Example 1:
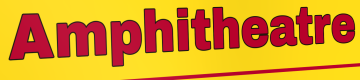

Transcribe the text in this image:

Amphitheatre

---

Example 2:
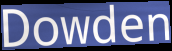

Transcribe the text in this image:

Dowden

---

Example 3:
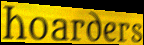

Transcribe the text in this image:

hoarders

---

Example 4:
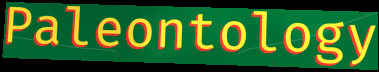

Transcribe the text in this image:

Paleontology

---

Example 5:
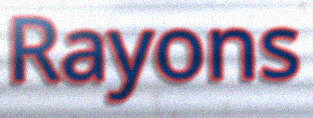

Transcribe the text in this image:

Rayons